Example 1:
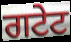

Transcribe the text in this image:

ਗਟੇਟ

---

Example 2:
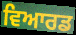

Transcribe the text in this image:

ਵਿਆਰਡ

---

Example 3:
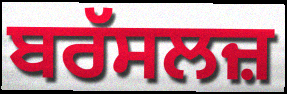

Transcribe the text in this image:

ਬਰੱਸਲਜ਼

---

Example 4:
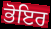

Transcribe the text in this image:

ਭੋਇਰ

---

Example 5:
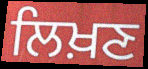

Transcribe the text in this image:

ਲਿਖ਼ਣ